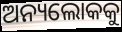
ଅନ୍ୟଲୋକକୁ